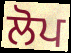
ਲੋਪ